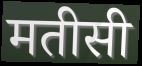
मतीसी